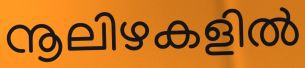
നൂലിഴകളിൽ